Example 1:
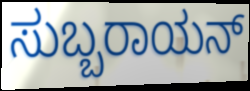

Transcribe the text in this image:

ಸುಬ್ಬರಾಯನ್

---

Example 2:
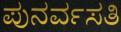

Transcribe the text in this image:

ಪುನರ್ವಸತಿ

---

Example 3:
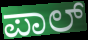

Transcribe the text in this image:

ಪಾಲ್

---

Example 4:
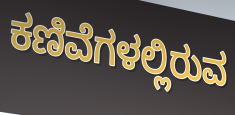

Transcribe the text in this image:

ಕಣಿವೆಗಳಲ್ಲಿರುವ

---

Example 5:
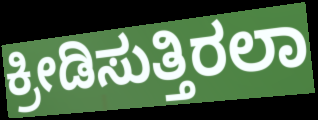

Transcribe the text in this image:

ಕ್ರೀಡಿಸುತ್ತಿರಲಾ